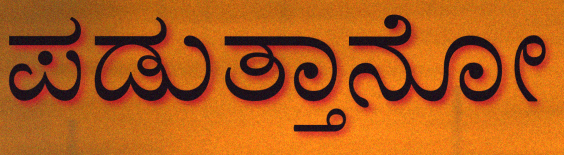
ಪಡುತ್ತಾನೋ